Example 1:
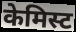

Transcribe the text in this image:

केमिस्ट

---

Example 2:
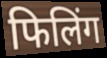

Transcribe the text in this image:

फिलिंग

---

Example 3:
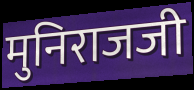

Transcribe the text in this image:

मुनिराजजी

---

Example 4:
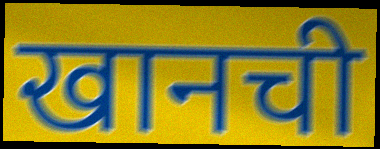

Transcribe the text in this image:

खानची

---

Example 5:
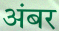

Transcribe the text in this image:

अंबर